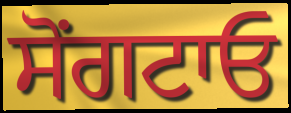
ਸੋਂਗਟਾਓ